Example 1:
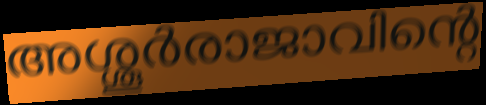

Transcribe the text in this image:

അശ്ശൂർരാജാവിന്റെ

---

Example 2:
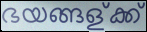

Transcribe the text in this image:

ഭയങ്ങള്ക്ക്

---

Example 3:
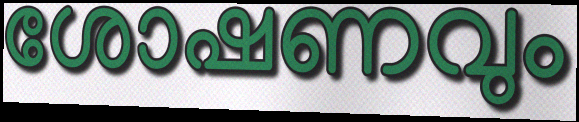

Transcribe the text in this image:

ശോഷണവും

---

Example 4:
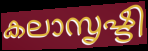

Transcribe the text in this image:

കലാസൃഷ്ടി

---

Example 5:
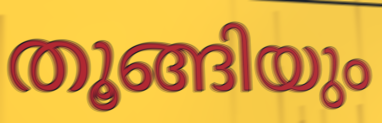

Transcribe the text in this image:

തൂങ്ങിയും